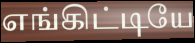
எங்கிட்டியே